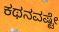
ಕಥನವಷ್ಟೇ